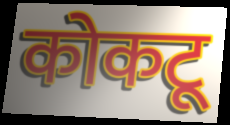
कोकटू